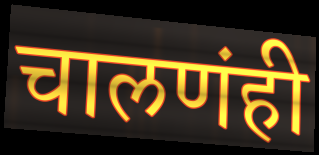
चालणंही